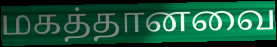
மகத்தானவை